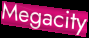
Megacity